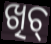
ଖିଚ୍